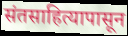
संतसाहित्यापासून